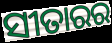
ସୀତାରର